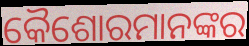
କୈଶୋରମାନଙ୍କର